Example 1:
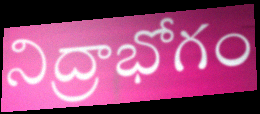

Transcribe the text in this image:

నిద్రాభోగం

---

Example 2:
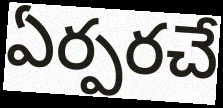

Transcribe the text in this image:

ఏర్పరచే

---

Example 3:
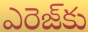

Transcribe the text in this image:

ఎరెజ్‌కు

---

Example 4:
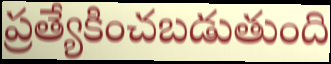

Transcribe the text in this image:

ప్రత్యేకించబడుతుంది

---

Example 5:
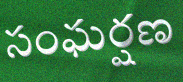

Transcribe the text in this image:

సంఘర్షణ